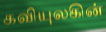
கவியுலகின்